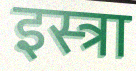
इस्त्रा